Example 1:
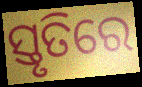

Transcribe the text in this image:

ସ୍ତୃତିରେ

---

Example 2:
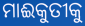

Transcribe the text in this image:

ମାଈକୁତୀକୁ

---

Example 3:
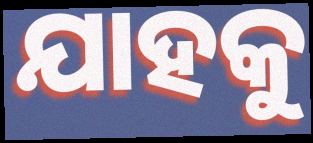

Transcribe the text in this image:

ଯାହକୁ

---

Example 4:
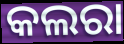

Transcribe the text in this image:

କଲରା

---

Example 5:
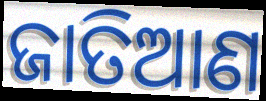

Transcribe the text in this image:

ଜାତିଆଣ